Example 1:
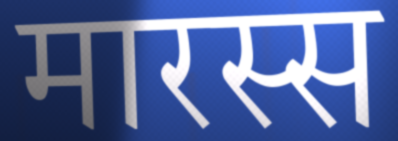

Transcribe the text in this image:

मारस्स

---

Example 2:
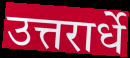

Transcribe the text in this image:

उत्तरार्धे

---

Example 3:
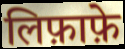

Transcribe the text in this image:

लिफ़ाफ़े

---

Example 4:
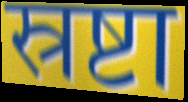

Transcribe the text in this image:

स्रष्टा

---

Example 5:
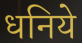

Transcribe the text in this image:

धनिये